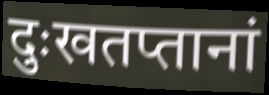
दुःखतप्तानां